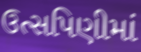
ઉત્સપિણીમાં